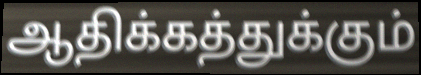
ஆதிக்கத்துக்கும்